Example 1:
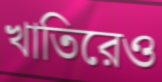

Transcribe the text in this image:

খাতিরেও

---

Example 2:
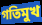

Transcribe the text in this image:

গতিমুখ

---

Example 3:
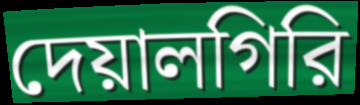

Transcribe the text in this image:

দেয়ালগিরি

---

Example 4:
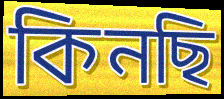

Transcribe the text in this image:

কিনছি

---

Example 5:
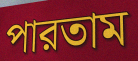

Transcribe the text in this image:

পারতাম